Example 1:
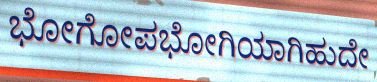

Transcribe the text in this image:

ಭೋಗೋಪಭೋಗಿಯಾಗಿಹುದೇ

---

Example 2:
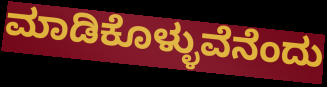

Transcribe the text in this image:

ಮಾಡಿಕೊಳ್ಳುವೆನೆಂದು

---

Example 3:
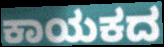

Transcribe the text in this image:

ಕಾಯಕದ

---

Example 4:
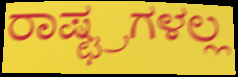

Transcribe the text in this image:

ರಾಷ್ಟ್ರಗಳಲ್ಲ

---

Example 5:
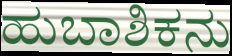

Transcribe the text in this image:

ಹುಬಾಶಿಕನು